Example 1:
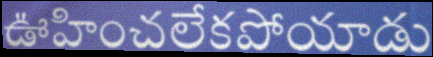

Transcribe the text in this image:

ఊహించలేకపోయాడు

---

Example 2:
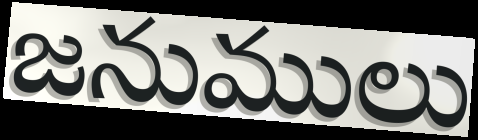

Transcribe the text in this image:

జనుములు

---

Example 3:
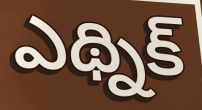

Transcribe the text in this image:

ఎథ్నిక్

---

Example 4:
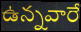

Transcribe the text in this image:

ఉన్నవారే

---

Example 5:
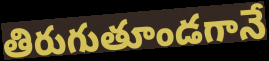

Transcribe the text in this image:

తిరుగుతూండగానే